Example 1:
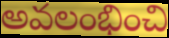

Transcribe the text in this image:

అవలంభించి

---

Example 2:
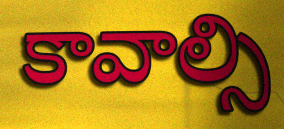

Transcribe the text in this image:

కావాల్సి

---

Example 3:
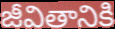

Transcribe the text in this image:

జీవితానికి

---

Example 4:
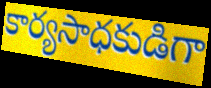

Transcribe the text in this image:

కార్యసాధకుడిగా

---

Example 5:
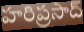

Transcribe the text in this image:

హరిప్రసాద్